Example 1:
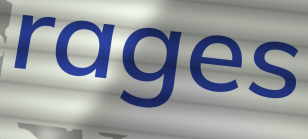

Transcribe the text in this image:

rages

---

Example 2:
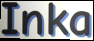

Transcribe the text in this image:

Inka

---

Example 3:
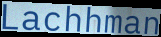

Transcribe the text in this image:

Lachhman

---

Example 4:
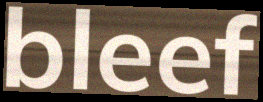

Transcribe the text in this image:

bleef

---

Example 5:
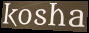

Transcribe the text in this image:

kosha